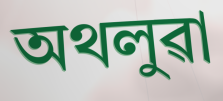
অথলুৱা